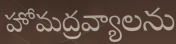
హోమద్రవ్యాలను